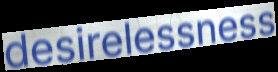
desirelessness